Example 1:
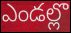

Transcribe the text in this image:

ఎండల్లొ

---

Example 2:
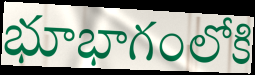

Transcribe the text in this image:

భూభాగంలోకి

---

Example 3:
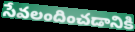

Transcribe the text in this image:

సేవలందించడానికి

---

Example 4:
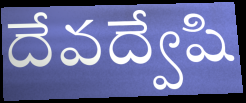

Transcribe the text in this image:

దేవద్వేషి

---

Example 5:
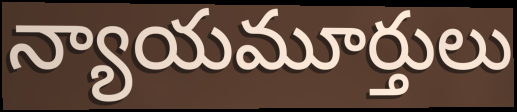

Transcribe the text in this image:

న్యాయమూర్తులు